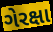
ગેરક્ષા